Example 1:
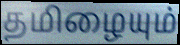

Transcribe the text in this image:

தமிழையும்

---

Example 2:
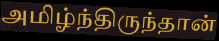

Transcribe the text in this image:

அமிழ்ந்திருந்தான்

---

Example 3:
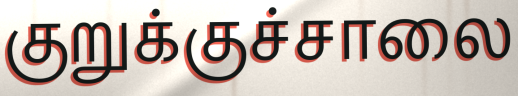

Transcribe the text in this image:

குறுக்குச்சாலை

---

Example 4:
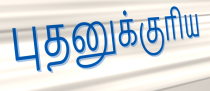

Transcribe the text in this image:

புதனுக்குரிய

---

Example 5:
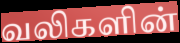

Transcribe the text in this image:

வலிகளின்